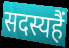
सदस्यहैं